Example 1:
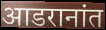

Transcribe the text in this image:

आडरानांत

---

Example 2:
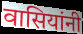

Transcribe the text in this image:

वासियांनी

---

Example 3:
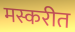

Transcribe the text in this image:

मस्करीत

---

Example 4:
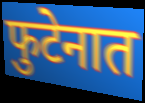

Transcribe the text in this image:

फुटेनात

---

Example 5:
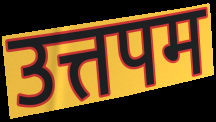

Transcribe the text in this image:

उत्तपम